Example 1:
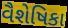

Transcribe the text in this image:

વૈશેષિકા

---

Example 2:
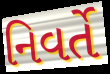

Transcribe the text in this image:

નિવર્તે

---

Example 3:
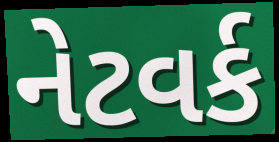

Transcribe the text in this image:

નેટવર્ક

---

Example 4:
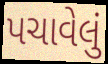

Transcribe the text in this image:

પચાવેલું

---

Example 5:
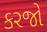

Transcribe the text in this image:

કરજો